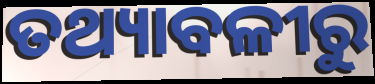
ତଥ୍ୟାବଳୀରୁ